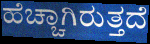
ಹೆಚ್ಚಾಗಿರುತ್ತದೆ